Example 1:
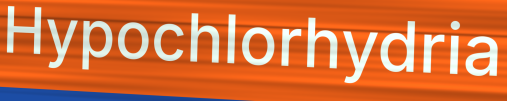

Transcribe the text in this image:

Hypochlorhydria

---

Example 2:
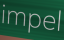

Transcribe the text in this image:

impel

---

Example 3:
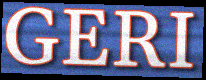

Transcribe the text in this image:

GERI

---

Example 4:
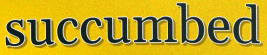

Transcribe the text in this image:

succumbed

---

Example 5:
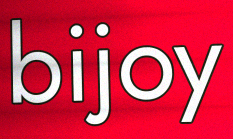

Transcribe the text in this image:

bijoy